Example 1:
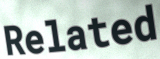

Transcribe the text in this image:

Related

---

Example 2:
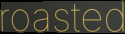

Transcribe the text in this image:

roasted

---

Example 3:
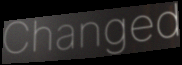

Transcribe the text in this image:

Changed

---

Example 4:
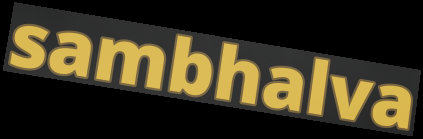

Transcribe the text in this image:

sambhalva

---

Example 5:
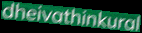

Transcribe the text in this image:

dheivathinkural